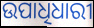
ଉପାଧିଧାରୀ